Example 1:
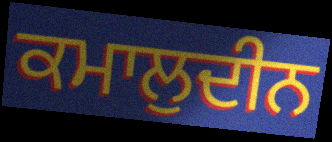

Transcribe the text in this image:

ਕਮਾਲੁਦੀਨ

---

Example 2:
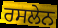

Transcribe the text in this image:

ਰਸਲੇਨ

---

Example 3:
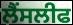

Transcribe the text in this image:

ਲੈਂਸਲੀਫ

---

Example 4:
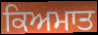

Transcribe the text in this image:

ਕਿਅਮਾਤ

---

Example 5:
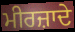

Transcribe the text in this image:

ਮੀਰਜ਼ਾਦੇ